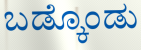
ಬಡ್ಕೊಂಡು